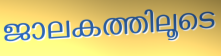
ജാലകത്തിലൂടെ